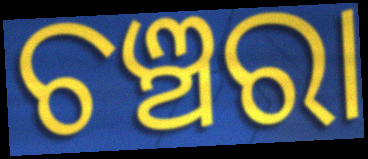
ଚଞ୍ଚରା